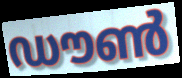
ഡൗൺ